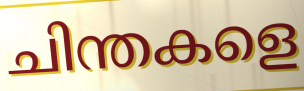
ചിന്തകളെ